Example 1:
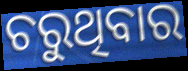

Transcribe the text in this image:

ଚରୁଥିବାର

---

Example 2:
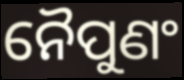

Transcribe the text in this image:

ନୈପୁଣଂ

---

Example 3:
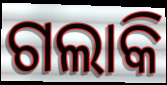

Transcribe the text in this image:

ଗଲାକି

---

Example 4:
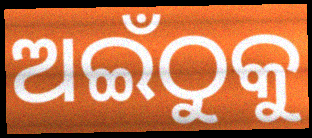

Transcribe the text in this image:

ଅଇଁଠୁକୁ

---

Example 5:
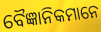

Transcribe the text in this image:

ବୈଜ୍ଞାନିକମାନେ